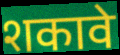
शकावे